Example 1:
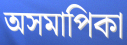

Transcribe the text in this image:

অসমাপিকা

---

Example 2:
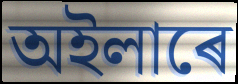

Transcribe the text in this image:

অইলাৰে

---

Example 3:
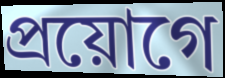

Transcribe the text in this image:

প্ৰয়োগে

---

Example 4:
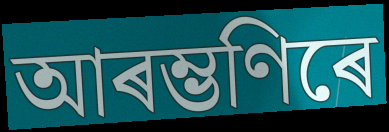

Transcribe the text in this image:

আৰম্ভণিৰে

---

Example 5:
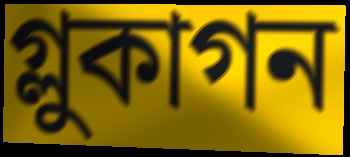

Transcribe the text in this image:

গ্লুকাগন